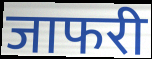
जाफरी